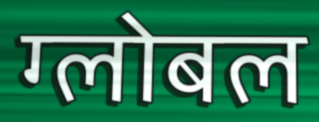
ग्लोबल